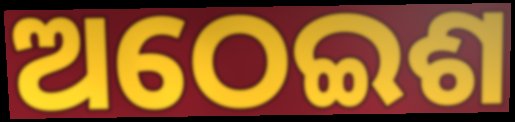
ଅଠେଇଶ